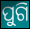
ପୁଗି